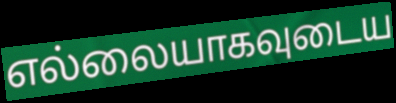
எல்லையாகவுடைய